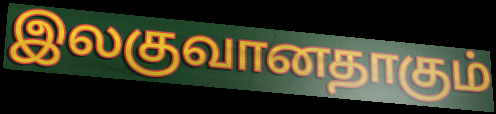
இலகுவானதாகும்